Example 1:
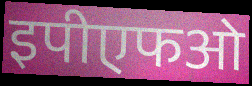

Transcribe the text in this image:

इपीएफओ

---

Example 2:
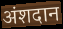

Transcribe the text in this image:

अंशदान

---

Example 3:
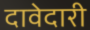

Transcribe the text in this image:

दावेदारी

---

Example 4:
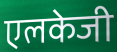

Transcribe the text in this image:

एलकेजी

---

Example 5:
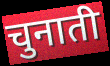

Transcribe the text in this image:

चुनाती